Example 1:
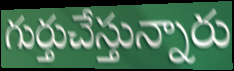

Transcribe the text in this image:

గుర్తుచేస్తున్నారు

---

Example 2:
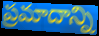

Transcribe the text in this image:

ప్రమాదాన్ని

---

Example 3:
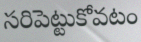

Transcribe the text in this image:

సరిపెట్టుకోవటం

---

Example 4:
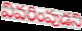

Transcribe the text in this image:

వివరింపుడని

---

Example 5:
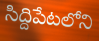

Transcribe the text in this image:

సిద్దిపేటలోని